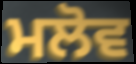
ਮਲੋਵ